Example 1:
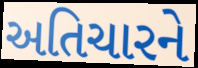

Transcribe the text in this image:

અતિચારને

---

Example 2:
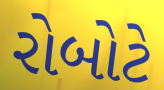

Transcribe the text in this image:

રોબોટે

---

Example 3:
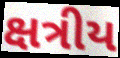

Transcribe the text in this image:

ક્ષત્રીય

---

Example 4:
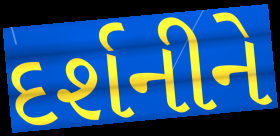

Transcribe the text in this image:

દર્શનીને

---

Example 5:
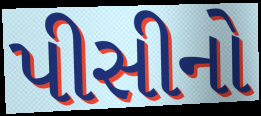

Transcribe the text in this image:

પીસીનો